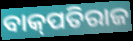
ବାକ୍‌ପତିରାଜ